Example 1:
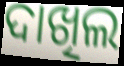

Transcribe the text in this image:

ଦାଖିଲ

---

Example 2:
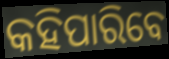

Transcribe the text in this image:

କହିପାରିବେ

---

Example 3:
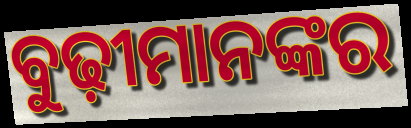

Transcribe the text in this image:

ବୁଢ଼ୀମାନଙ୍କର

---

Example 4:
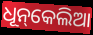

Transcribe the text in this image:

ଧୂନ୍‌କେଲିଆ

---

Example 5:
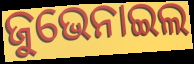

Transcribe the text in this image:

ଜୁଭେନାଇଲ